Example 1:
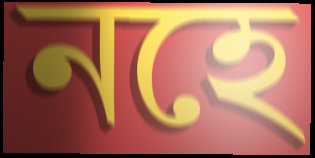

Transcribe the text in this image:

নহে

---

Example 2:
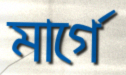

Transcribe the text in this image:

মার্গে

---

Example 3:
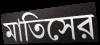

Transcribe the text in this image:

মাতিসের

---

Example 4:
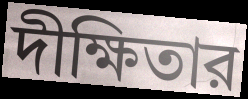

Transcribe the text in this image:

দীক্ষিতার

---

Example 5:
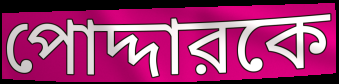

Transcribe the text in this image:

পোদ্দারকে